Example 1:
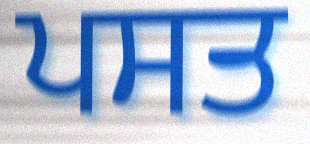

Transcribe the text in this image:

ਪਸਤ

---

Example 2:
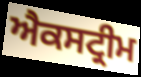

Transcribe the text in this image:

ਐਕਸਟ੍ਰੀਮ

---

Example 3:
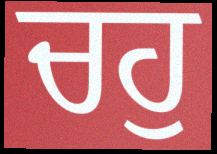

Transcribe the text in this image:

ਚਹੁ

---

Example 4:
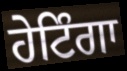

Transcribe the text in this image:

ਹੇਟਿੰਗਾ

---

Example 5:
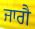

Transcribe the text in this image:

ਜਾਗੈ